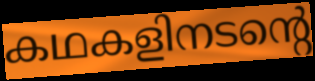
കഥകളിനടന്റെ